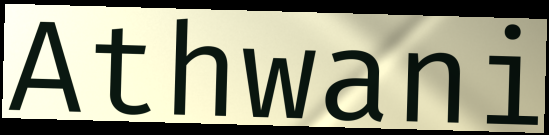
Athwani